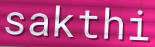
sakthi